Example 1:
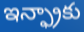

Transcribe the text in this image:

ఇన్ఫ్రాకు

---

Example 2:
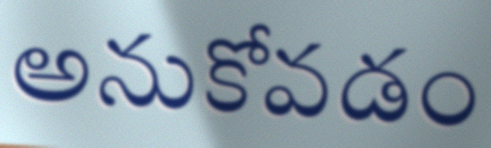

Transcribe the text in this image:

అనుకోవడం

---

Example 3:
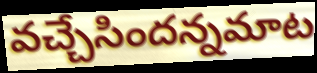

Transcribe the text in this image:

వచ్చేసిందన్నమాట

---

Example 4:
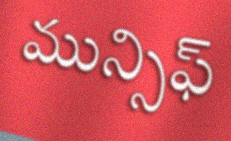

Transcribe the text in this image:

మున్సిఫ్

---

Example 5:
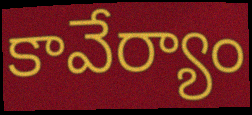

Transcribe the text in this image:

కావేర్యాం